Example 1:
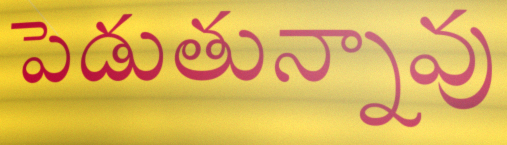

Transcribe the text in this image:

పెడుతున్నావు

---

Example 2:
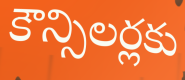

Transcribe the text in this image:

కౌన్సిలర్లకు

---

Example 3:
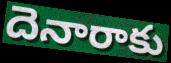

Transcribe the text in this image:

దెనారాకు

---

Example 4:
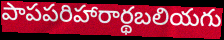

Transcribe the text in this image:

పాపపరిహారార్థబలియగు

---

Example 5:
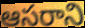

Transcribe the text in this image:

ఆసరాని